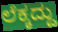
ಲೆಕ್ಕದ್ದು